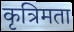
कृत्रिमता